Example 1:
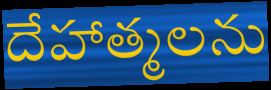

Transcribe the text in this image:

దేహాత్మలను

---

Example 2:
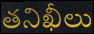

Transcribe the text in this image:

తనిఖీలు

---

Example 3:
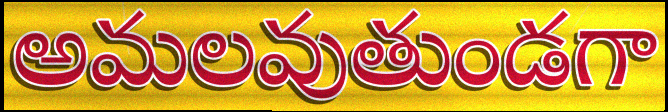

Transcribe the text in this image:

అమలవుతుండగా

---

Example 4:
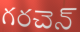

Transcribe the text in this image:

గరచెన్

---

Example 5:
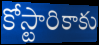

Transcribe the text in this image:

కోస్టారికాకు